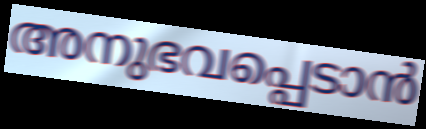
അനുഭവപ്പെടാൻ